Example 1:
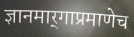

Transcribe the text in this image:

ज्ञानमार्गाप्रमाणेच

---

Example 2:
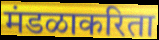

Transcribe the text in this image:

मंडळाकरिता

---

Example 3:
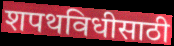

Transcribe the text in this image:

शपथविधीसाठी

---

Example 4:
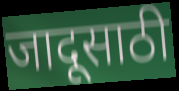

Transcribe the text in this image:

जादूसाठी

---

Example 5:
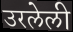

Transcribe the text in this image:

उरलेली